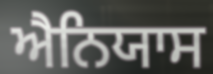
ਐਨਿਯਾਸ